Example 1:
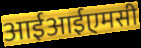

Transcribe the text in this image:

आईआईएमसी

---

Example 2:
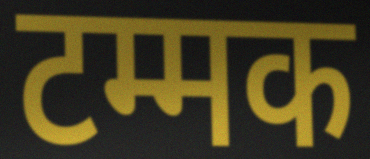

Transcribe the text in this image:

टम्मक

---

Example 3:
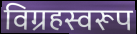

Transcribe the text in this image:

विग्रहस्वरूप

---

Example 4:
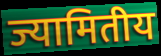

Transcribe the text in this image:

ज्यामितीय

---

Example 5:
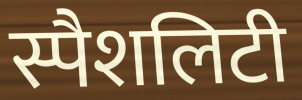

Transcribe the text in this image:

स्पैशलिटी